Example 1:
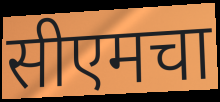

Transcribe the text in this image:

सीएमचा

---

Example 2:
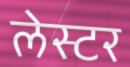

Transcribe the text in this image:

लेस्टर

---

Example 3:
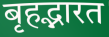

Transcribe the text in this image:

बृहद्भारत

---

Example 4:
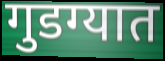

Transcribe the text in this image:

गुडग्यात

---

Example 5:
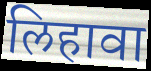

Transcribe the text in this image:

लिहावा